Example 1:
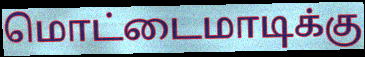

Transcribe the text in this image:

மொட்டைமாடிக்கு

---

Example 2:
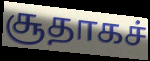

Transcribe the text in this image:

சூதாகச்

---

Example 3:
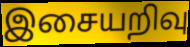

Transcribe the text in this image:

இசையறிவு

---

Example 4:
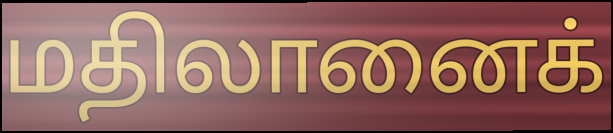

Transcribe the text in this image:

மதிலானைக்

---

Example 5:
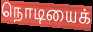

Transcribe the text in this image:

நொடியைக்